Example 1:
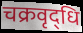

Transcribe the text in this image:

चक्रवृद्धि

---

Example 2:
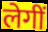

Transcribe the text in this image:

लेगीं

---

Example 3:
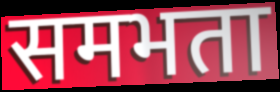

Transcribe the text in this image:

समभता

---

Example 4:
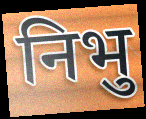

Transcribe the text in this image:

निभु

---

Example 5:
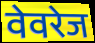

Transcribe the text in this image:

वेवरेज